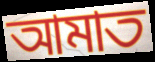
আমাত